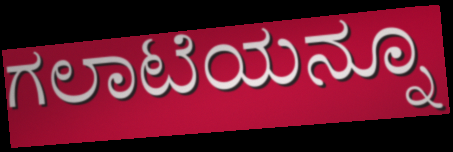
ಗಲಾಟೆಯನ್ನೂ